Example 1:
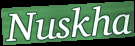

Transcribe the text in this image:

Nuskha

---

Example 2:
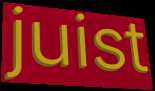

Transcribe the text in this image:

juist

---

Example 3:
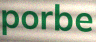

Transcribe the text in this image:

porbe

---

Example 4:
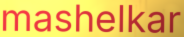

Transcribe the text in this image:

mashelkar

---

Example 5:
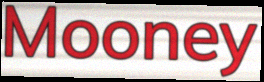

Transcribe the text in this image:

Mooney